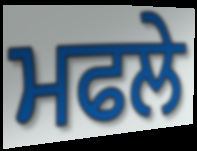
ਮਫਲੇ